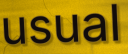
usual